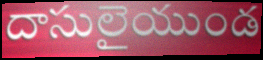
దాసులైయుండ